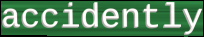
accidently